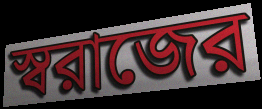
স্বরাজের